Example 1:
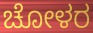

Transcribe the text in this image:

ಚೋಳರ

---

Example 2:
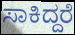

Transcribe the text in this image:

ಸಾಕಿದ್ದರೆ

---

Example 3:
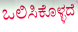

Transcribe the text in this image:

ಒಲಿಸಿಕೊಳ್ಳದೆ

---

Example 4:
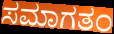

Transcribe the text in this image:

ಸಮಾಗತಂ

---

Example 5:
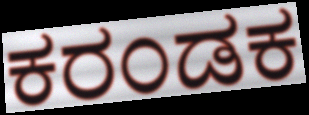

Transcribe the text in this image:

ಕರಂಡಕ